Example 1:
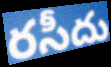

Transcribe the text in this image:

రసీదు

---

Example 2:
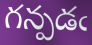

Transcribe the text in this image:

గన్పడఁ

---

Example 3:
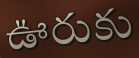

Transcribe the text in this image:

ఊరుకు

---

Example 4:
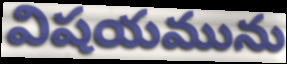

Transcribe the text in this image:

విషయమును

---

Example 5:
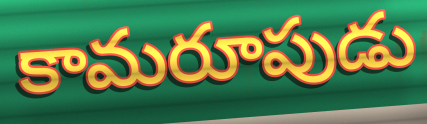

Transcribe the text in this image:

కామరూపుడు